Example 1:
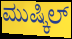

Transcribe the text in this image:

ಮುಷ್ಕಿಲ್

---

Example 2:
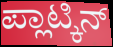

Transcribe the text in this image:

ಪ್ಲಾಟ್ಕಿನ್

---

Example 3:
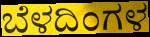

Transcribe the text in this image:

ಬೆಳದಿಂಗಳ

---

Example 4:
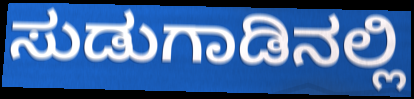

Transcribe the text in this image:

ಸುಡುಗಾಡಿನಲ್ಲಿ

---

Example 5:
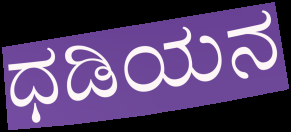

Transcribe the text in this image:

ಧಡಿಯನ